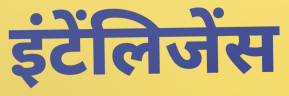
इंटेंलिजेंस